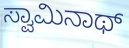
ಸ್ವಾಮಿನಾಥ್